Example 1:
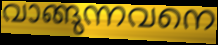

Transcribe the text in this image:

വാങ്ങുന്നവനെ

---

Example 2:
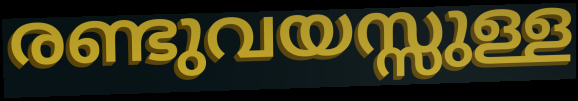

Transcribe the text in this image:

രണ്ടുവയസ്സുള്ള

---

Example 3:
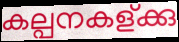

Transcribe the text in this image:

കല്പനകള്ക്കു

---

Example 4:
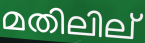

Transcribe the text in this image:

മതിലില്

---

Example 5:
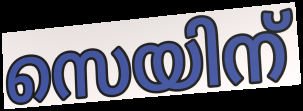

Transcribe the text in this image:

സെയിന്